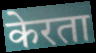
केरता